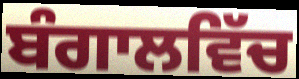
ਬੰਗਾਲਵਿੱਚ